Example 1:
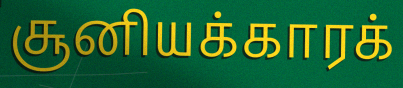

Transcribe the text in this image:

சூனியக்காரக்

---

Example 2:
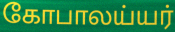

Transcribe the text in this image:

கோபாலய்யர்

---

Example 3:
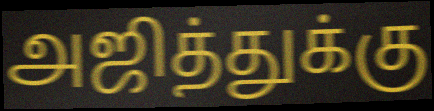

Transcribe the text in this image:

அஜித்துக்கு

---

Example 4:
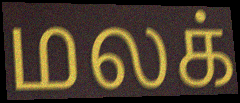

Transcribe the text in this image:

மலக்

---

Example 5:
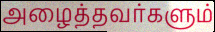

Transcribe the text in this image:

அழைத்தவர்களும்